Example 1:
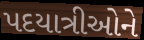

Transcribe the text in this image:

પદયાત્રીઓને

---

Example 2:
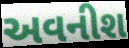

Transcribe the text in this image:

અવનીશ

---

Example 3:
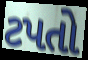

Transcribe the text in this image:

ટપતો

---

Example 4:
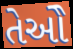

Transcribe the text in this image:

તેઓે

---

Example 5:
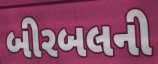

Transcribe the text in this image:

બીરબલની